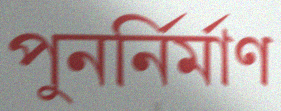
পুনৰ্নিৰ্মাণ